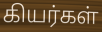
கியர்கள்